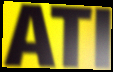
ATI